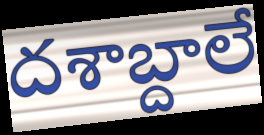
దశాబ్దాలే